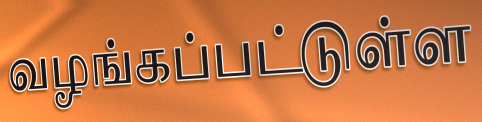
வழங்கப்பட்டுள்ள